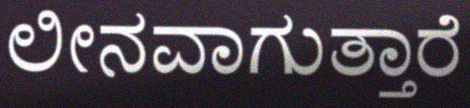
ಲೀನವಾಗುತ್ತಾರೆ